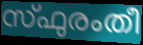
സ്ഫുരംതീ